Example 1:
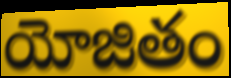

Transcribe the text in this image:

యోజితం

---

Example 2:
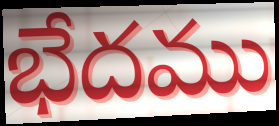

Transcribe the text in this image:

భేదము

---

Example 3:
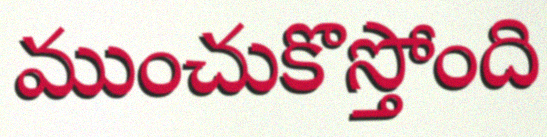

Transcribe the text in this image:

ముంచుకొస్తోంది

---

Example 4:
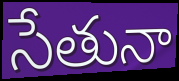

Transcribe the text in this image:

సేతునా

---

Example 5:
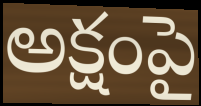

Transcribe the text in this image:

అక్షంపై